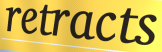
retracts